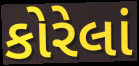
કોરેલાં